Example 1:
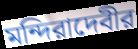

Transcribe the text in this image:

মন্দিরাদেবীর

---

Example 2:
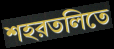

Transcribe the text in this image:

শহরতলিতে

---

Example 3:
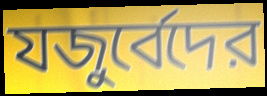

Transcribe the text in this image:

যজুর্বেদের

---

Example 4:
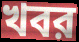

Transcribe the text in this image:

খবর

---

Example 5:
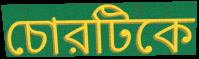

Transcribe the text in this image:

চোরটিকে